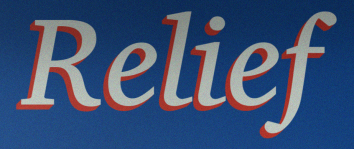
Relief